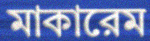
মাকারেম